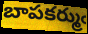
బాపకర్ముఁ